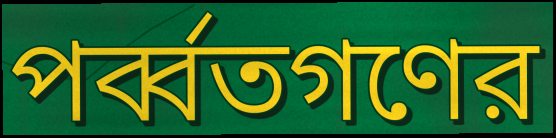
পর্ব্বতগণের